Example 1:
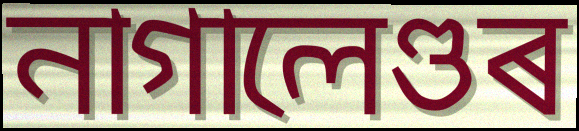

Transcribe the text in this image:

নাগালেণ্ডৰ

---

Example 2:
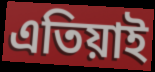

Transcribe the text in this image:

এতিয়াই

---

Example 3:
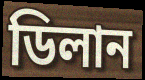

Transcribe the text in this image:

ডিলান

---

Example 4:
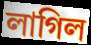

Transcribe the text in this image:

লাগিল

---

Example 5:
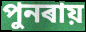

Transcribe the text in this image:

পুনৰায়